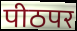
पीठपर